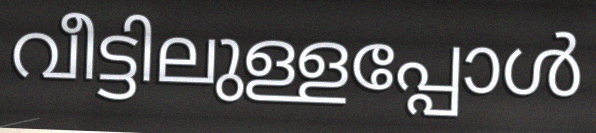
വീട്ടിലുള്ളപ്പോൾ